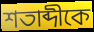
শতাব্দীকে